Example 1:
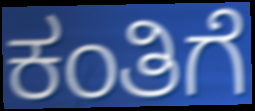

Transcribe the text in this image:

ಕಂತಿಗೆ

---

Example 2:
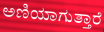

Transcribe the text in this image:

ಅಣಿಯಾಗುತ್ತಾರೆ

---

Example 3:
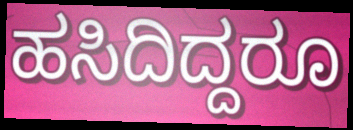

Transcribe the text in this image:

ಹಸಿದಿದ್ದರೂ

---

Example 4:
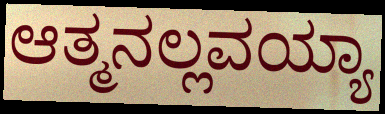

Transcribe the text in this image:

ಆತ್ಮನಲ್ಲವಯ್ಯಾ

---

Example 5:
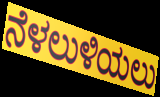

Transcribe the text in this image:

ನೆಳಲುಳಿಯಲು